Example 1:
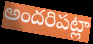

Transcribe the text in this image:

అందరిపట్లా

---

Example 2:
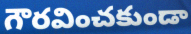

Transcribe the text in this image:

గౌరవించకుండా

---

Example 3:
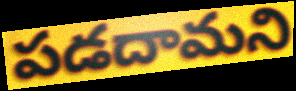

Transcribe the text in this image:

పడదామని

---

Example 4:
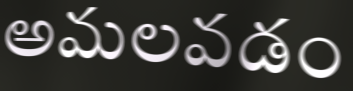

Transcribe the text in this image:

అమలవడం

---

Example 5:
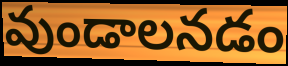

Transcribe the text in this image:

వుండాలనడం